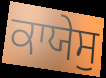
ਕਾਯੇਸੁ